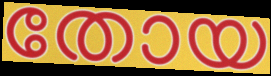
തോയ